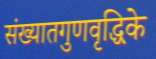
संख्यातगुणवृद्धिके